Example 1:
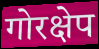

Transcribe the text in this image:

गोरक्षेप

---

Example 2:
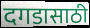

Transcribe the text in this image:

दगडासाठी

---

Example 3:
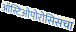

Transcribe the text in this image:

ऑस्टिओपोरोसिसचा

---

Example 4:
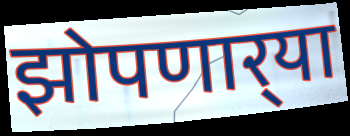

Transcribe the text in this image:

झोपणार्‍या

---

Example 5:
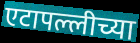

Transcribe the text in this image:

एटापल्लीच्या